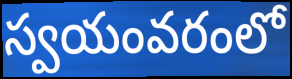
స్వయంవరంలో